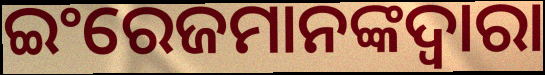
ଇଂରେଜମାନଙ୍କଦ୍ୱାରା